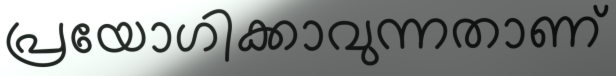
പ്രയോഗിക്കാവുന്നതാണ്